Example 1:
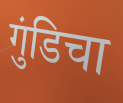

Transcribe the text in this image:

गुंडिचा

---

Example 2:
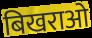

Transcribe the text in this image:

बिखराओ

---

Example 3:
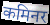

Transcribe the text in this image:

कमिनर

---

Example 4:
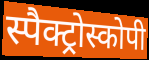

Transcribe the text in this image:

स्पैक्ट्रोस्कोपी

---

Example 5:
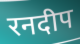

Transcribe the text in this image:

रनदीप